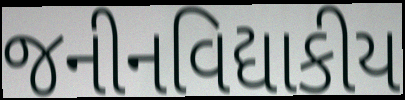
જનીનવિદ્યાકીય